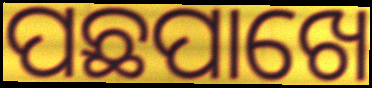
ପଛପାଖେ